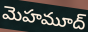
మెహమూద్